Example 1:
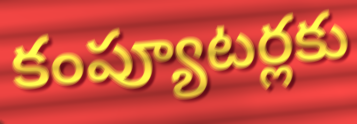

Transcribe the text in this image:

కంప్యూటర్లకు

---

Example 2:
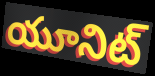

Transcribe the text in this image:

యూనిట్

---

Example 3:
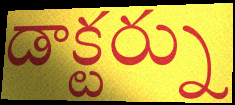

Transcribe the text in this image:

డాక్టర్ను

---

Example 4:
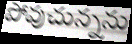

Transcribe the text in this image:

పోవుచున్నను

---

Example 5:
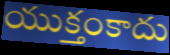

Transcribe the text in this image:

యుక్తంకాదు